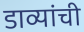
डाव्यांची